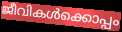
ജീവികൾക്കൊപ്പം